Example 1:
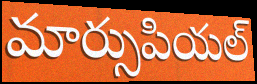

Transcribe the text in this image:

మార్సుపియల్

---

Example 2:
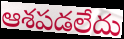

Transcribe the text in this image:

ఆశపడలేదు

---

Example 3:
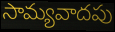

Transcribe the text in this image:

సామ్యవాదపు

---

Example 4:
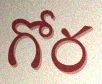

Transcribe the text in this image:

గోర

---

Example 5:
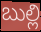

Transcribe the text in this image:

బుల్లి